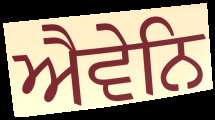
ਐਵੇਨਿ